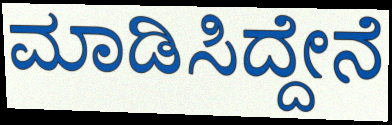
ಮಾಡಿಸಿದ್ದೇನೆ